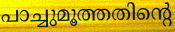
പാച്ചുമൂത്തതിന്റെ